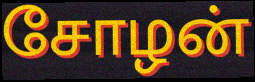
சோழன்